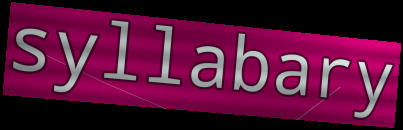
syllabary